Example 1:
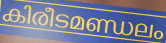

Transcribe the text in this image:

കിരീടമണ്ഡലം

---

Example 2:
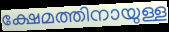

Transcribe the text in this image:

ക്ഷേമത്തിനായുള്ള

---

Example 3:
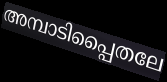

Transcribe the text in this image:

അമ്പാടിപ്പൈതലേ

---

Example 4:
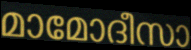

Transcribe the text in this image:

മാമോദീസാ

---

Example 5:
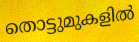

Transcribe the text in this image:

തൊട്ടുമുകളിൽ